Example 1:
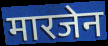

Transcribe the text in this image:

मारजेन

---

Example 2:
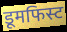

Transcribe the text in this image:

डूमफिस्ट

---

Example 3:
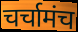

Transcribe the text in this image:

चर्चामंच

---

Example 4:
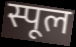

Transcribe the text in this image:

स्पूल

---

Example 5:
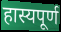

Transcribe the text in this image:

हास्यपूर्ण